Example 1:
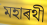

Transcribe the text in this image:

মহাৰথী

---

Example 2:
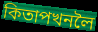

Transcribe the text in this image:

কিতাপখনলৈ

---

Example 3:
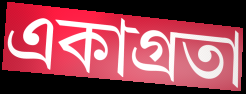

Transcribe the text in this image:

একাগ্ৰতা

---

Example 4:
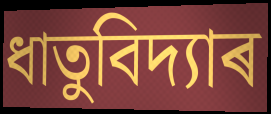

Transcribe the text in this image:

ধাতুবিদ্যাৰ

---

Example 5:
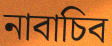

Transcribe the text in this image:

নাবাচিব